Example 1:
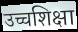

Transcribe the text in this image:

उच्चशिक्षा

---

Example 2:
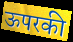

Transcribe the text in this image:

ऊपरकी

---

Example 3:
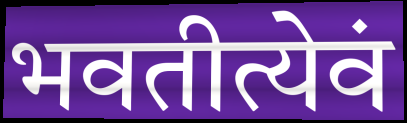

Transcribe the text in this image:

भवतीत्येवं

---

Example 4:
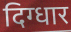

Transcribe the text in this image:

दिग्धार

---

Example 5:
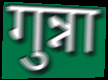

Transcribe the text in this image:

गुन्ना